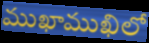
ముఖాముఖిలో